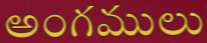
అంగములు